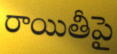
రాయితీపై